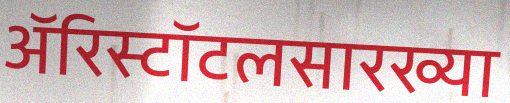
ॲरिस्टॉटलसारख्या